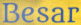
Besar